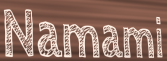
Namami